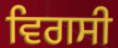
ਵਿਗਸੀ